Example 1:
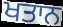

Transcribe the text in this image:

ਖਤਾਨ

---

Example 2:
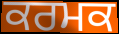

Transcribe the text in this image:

ਕਰਮਕ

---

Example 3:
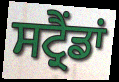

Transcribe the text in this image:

ਸਟ੍ਰੈਂਡਾਂ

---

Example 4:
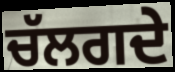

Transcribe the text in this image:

ਚੱਲਗਦੇ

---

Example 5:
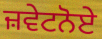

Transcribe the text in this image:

ਜ਼ਵੇਟਨੋਏ